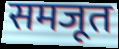
समजूत